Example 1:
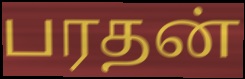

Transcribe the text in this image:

பரதன்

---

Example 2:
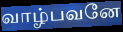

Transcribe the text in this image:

வாழ்பவனே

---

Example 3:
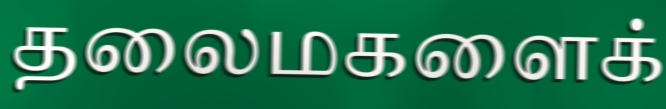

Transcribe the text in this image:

தலைமகளைக்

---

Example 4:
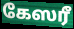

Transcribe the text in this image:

கேஸரீ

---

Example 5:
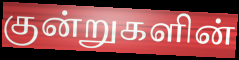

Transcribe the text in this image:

குன்றுகளின்